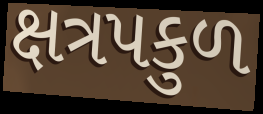
ક્ષત્રપકુળ